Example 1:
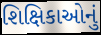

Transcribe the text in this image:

શિક્ષિકાઓનું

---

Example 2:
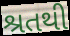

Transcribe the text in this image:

શ્રતથી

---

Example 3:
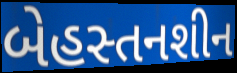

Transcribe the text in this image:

બેહસ્તનશીન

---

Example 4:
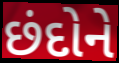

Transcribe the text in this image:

છંદોને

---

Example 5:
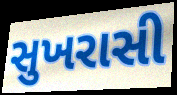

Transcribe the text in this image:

સુખરાસી